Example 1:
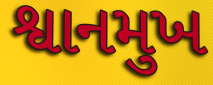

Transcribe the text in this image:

શ્વાનમુખ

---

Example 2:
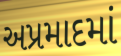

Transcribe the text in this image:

અપ્રમાદમાં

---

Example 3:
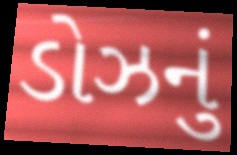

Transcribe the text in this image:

ડોઝનું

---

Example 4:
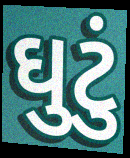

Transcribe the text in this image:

ઘુટું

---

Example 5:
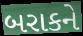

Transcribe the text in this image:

બરાકને